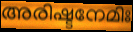
അരിഷ്ടനേമിഃ